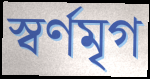
স্বর্ণমৃগ